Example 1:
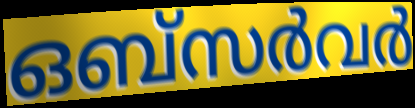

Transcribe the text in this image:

ഒബ്സർവർ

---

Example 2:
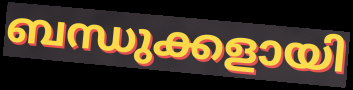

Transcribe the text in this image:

ബന്ധുക്കളായി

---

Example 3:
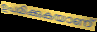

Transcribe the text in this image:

ഉപമിക്കുകയാണ്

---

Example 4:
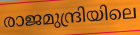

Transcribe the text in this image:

രാജമുന്ദ്രിയിലെ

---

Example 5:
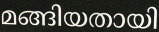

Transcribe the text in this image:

മങ്ങിയതായി